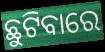
ଛୁଟିବାରେ